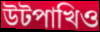
উটপাখিও